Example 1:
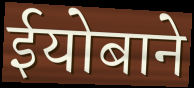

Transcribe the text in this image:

ईयोबाने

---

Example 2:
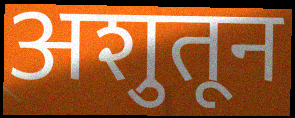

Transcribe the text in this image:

अश्रुतून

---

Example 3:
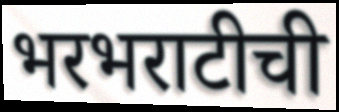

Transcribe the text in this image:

भरभराटीची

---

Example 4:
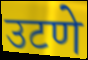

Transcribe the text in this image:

उटणे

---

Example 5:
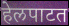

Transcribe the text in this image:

हेलपाटत